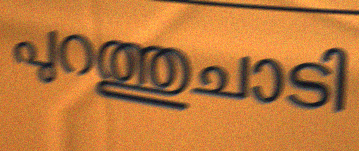
പുറത്തുചാടി